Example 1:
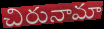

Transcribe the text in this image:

చిరునామా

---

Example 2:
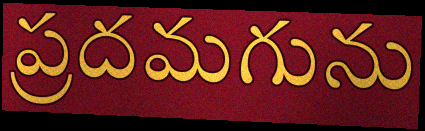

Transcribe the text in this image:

ప్రదమగును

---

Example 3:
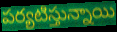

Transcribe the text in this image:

పర్యటిస్తున్నాయి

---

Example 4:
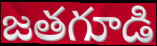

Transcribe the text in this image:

జతగూడి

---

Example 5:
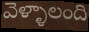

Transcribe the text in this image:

వెళ్ళాలంది